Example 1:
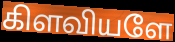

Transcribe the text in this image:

கிளவியளே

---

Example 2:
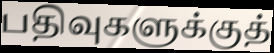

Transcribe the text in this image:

பதிவுகளுக்குத்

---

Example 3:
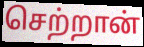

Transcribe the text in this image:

செற்றான்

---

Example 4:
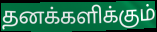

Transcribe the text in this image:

தனக்களிக்கும்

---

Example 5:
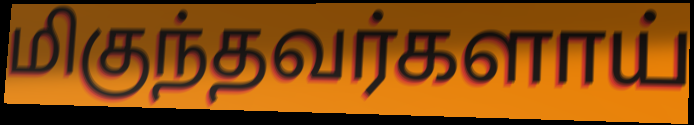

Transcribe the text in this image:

மிகுந்தவர்களாய்